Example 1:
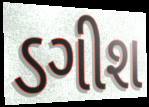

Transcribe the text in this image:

ડગીશ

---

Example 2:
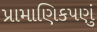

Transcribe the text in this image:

પ્રામાણિકપણું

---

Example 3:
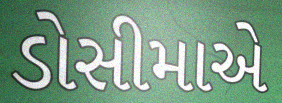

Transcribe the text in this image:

ડોસીમાએ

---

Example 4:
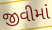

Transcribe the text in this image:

જીવીમાં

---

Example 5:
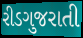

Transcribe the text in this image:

રીડગુજરાતી